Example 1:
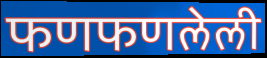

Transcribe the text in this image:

फणफणलेली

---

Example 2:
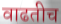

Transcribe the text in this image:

वाढतीच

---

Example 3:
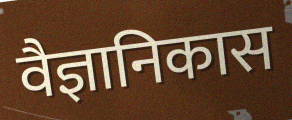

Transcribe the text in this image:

वैज्ञानिकास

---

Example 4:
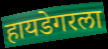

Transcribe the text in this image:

हायडेगरला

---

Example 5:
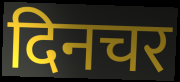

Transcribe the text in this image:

दिनचर